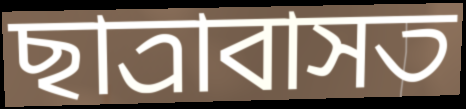
ছাত্ৰাবাসত